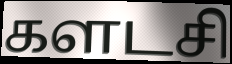
களடசி